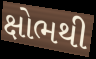
ક્ષોભથી